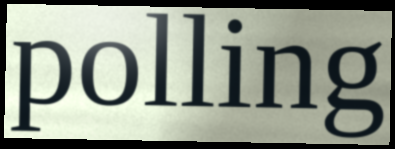
polling